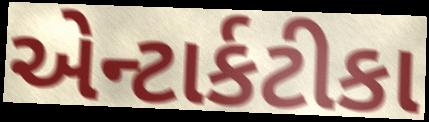
એન્ટાર્કટીકા